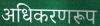
अधिकरणरूप